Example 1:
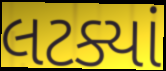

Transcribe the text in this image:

લટક્યાં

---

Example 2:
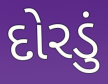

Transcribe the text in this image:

દોરડું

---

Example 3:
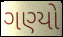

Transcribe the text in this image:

ગણ્યો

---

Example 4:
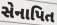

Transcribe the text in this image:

સેનાપિત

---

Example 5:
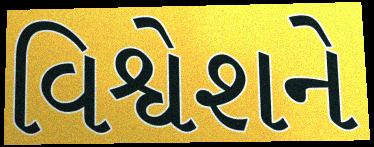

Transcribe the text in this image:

વિશ્વેશને